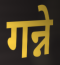
गन्ने